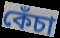
কেঁচা